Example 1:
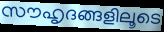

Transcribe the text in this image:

സൗഹൃദങ്ങളിലൂടെ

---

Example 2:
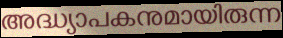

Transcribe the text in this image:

അദ്ധ്യാപകനുമായിരുന്ന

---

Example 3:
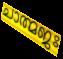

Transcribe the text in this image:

ചാത്മജഃ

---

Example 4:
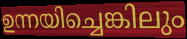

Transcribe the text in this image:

ഉന്നയിച്ചെങ്കിലും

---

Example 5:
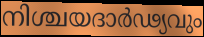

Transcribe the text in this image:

നിശ്ചയദാർഢ്യവും